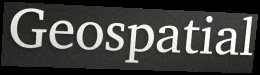
Geospatial